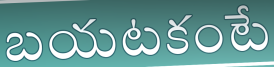
బయటకంటే